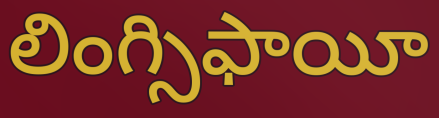
లింగ్సిఫాయీ